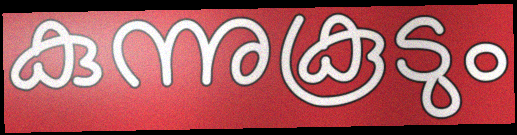
കുന്നുകൂടും